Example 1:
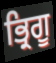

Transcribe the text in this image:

ਭ੍ਰਿਗੂ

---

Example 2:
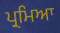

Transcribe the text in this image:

ਪ੍ਰਮਿਆ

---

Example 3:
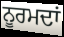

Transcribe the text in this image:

ਨੂਰਮਦਾਂ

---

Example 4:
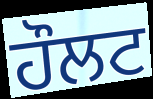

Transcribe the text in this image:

ਹੌਲਟ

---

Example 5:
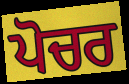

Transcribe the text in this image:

ਪੋਚਰ